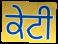
ਕੇਟੀ